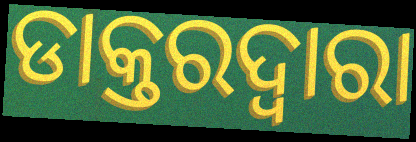
ଡାକ୍ତରଦ୍ୱାରା